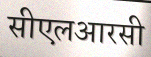
सीएलआरसी